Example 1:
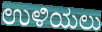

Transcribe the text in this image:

ಉಳಿಯಲು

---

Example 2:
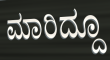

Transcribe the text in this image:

ಮಾರಿದ್ದೂ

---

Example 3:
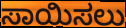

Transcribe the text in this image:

ಸಾಯಿಸಲು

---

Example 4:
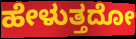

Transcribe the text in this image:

ಹೇಳುತ್ತದೋ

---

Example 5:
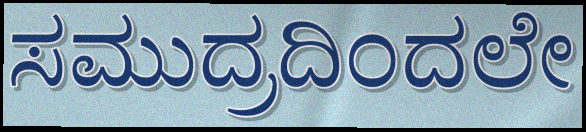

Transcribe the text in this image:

ಸಮುದ್ರದಿಂದಲೇ